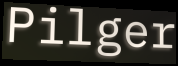
Pilger